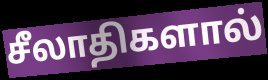
சீலாதிகளால்